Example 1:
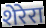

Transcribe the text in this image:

शेरेरा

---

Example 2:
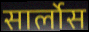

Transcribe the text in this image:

सार्लोस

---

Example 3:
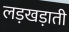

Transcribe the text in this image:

लड़खड़ाती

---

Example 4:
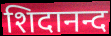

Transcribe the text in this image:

शिदानन्द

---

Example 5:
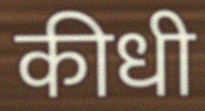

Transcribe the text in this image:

कीधी